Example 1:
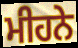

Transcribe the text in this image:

ਮੀਹਨੇ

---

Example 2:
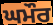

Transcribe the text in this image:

ਘਮੌਰ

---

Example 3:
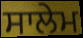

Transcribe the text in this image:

ਸਾਲੇਮ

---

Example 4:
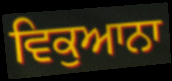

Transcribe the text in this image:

ਵਿਕੁਆਨਾ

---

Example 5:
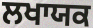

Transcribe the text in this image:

ਲਖਾਯਕ